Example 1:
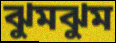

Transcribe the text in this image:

ঝুমঝুম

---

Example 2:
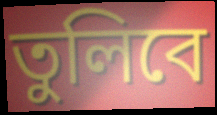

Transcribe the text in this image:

তুলিবে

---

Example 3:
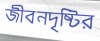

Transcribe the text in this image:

জীবনদৃষ্টির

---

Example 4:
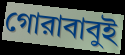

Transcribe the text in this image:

গোরাবাবুই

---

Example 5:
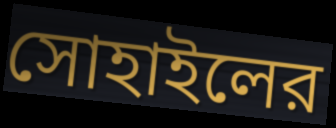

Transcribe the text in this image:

সোহাইলের